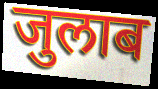
जुलाब